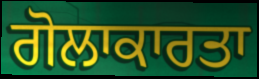
ਗੋਲਾਕਾਰਤਾ